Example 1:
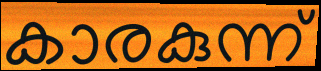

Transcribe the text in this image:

കാരകുന്ന്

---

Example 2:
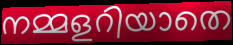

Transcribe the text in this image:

നമ്മളറിയാതെ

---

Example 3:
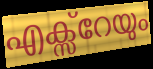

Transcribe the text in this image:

എക്സ്റേയും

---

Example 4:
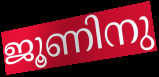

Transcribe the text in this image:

ജൂണിനു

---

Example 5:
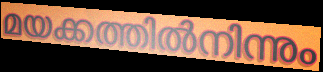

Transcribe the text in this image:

മയക്കത്തിൽനിന്നും